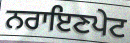
ਨਰਾਇਣਪੇਟ